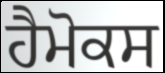
ਹੈਮੋਕਸ